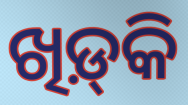
ଖିଡ଼୍‌କି